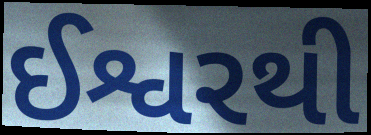
ઈશ્વરથી